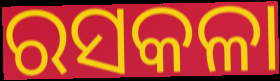
ରସକଳା